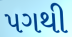
પગથી